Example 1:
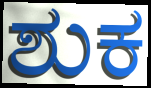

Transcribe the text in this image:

ಶುಕ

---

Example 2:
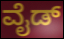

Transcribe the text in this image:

ವೈಡ್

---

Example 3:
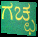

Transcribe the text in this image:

ಗಚ್ಛ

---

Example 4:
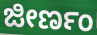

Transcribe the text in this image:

ಜೀರ್ಣಂ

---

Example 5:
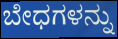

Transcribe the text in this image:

ಬೇಧಗಳನ್ನು